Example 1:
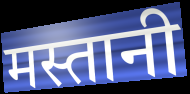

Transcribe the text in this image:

मस्‍तानी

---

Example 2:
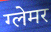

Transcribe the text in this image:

ग्लेमर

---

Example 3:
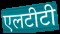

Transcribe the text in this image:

एलटीटी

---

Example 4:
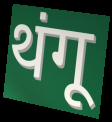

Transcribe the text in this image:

थंगू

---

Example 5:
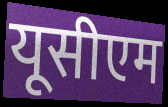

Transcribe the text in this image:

यूसीएम